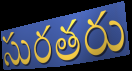
సురతరు